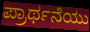
ಪ್ರಾರ್ಥನೆಯು